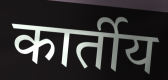
कार्तीय